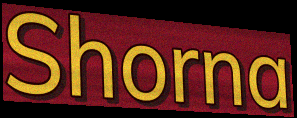
Shorna